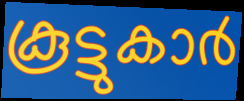
കൂട്ടുകാർ